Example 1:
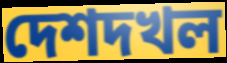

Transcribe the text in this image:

দেশদখল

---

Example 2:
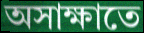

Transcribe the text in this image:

অসাক্ষাতে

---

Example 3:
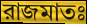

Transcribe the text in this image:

রাজমাতঃ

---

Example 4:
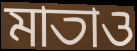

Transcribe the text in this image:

মাতাও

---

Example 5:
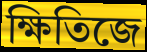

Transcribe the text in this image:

ক্ষিতিজে